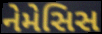
નેમેસિસ